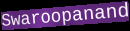
Swaroopanand